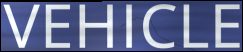
VEHICLE